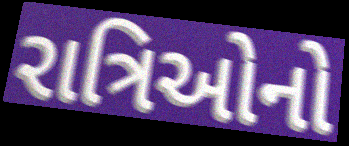
રાત્રિઓનો